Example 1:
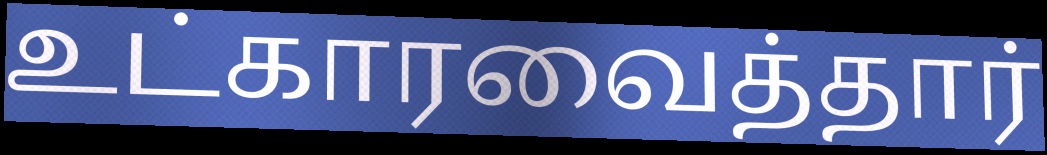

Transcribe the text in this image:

உட்காரவைத்தார்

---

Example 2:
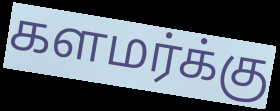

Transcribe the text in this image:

களமர்க்கு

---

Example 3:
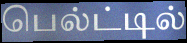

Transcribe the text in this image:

பெல்ட்டில்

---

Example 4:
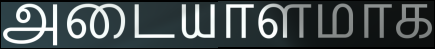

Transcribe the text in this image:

அடையாளமாக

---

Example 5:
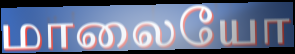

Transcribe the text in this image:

மாலையோ